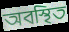
অবস্থিত